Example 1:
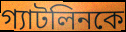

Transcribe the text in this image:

গ্যাটলিনকে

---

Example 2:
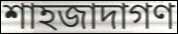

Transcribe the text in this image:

শাহজাদাগণ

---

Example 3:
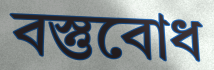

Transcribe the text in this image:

বস্তুবোধ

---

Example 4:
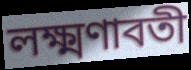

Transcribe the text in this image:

লক্ষ্মণাবতী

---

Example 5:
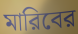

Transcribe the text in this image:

মারিবের